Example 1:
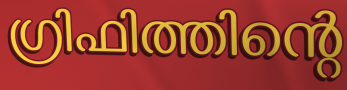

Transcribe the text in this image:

ഗ്രിഫിത്തിന്റെ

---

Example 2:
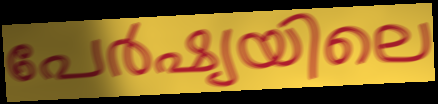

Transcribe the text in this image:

പേർഷ്യയിലെ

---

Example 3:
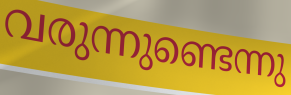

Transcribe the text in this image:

വരുന്നുണ്ടെന്നു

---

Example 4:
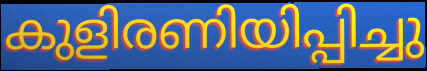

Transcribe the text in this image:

കുളിരണിയിപ്പിച്ചു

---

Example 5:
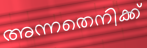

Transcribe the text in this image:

അന്നതെനിക്ക്